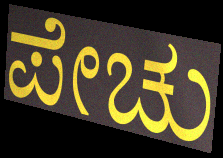
ಪೇಚು